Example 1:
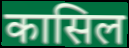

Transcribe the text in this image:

कासिल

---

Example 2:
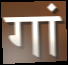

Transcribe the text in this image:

गां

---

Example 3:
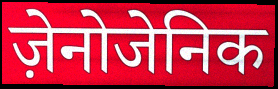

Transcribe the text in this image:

ज़ेनोजेनिक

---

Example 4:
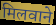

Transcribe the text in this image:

मिलवाने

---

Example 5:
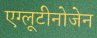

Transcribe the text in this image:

एग्लूटीनोजेन